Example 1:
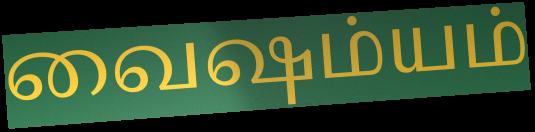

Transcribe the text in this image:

வைஷம்யம்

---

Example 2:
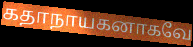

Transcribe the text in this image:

கதாநாயகனாகவே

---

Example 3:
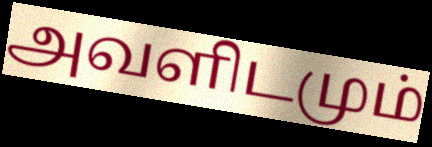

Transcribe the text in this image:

அவளிடமும்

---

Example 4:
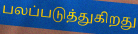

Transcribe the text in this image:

பலப்படுத்துகிறது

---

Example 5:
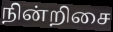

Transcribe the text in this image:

நின்றிசை